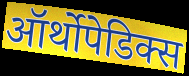
ऑर्थोपेडिक्स